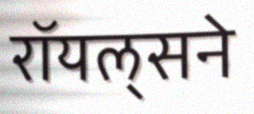
रॉयल्सने